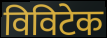
विविटेक